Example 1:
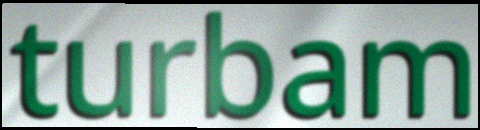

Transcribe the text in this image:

turbam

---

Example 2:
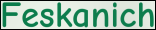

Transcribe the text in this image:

Feskanich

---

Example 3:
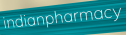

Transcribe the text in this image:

indianpharmacy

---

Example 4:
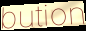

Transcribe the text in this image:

bution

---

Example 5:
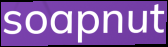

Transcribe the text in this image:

soapnut